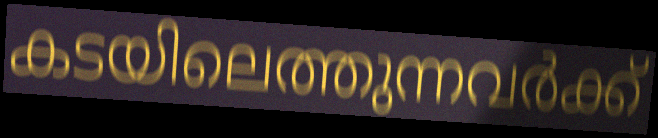
കടയിലെത്തുന്നവർക്ക്